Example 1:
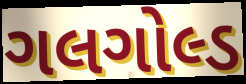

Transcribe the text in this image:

ગલગોલ્ડ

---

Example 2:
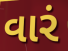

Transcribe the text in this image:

વારં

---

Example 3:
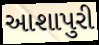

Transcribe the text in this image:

આશાપુરી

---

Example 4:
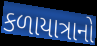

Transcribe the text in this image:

કળાયાત્રાનો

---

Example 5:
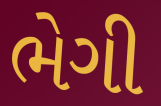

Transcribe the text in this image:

ભેગી